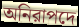
অনিরাপদে